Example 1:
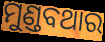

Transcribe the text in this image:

ମୁଣ୍ଡବଥାର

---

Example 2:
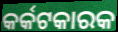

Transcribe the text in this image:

କର୍କଟକାରକ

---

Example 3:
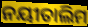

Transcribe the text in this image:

ନୟୀତାଲିମ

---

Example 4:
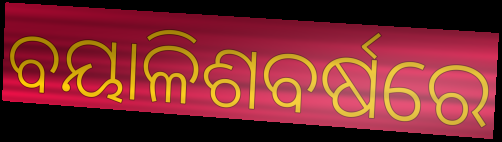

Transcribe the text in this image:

ବୟାଳିଶବର୍ଷରେ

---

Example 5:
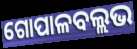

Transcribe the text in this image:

ଗୋପାଳବଲ୍ଲଭ